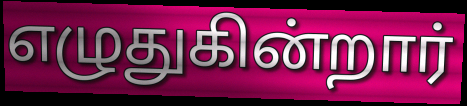
எழுதுகின்றார்